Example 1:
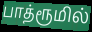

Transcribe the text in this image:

பாத்ரூமில்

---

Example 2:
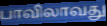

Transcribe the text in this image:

பாவிலாவது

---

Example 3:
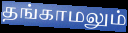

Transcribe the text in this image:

தங்காமலும்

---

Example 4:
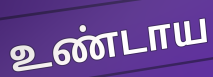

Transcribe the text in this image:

உண்டாய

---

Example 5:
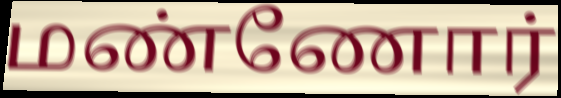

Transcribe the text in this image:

மண்ணோர்